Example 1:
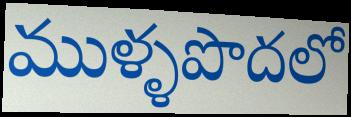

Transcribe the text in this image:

ముళ్ళపొదలో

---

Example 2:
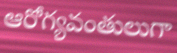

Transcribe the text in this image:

ఆరోగ్యవంతులుగా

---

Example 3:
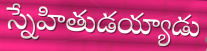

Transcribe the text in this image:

స్నేహితుడయ్యాడు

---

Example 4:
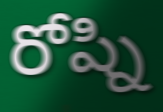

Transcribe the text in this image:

రోష్ని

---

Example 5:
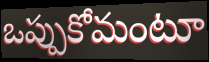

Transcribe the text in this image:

ఒప్పుకోమంటూ